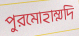
পুরমোহাম্মদি